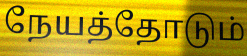
நேயத்தோடும்